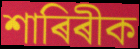
শাৰিৰীক